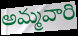
అమ్మవారి